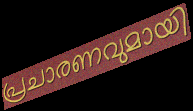
പ്രചാരണവുമായി